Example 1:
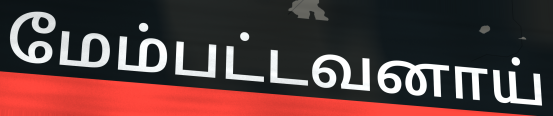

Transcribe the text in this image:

மேம்பட்டவனாய்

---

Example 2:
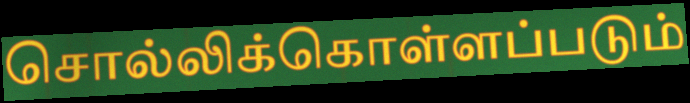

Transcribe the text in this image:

சொல்லிக்கொள்ளப்படும்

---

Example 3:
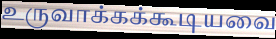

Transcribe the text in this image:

உருவாக்கக்கூடியவை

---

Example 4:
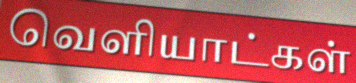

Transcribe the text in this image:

வெளியாட்கள்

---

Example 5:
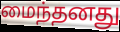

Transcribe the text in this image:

மைந்தனது